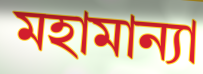
মহামান্যা